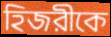
হিজরীকে